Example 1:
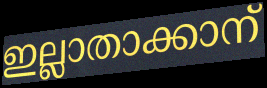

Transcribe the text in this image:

ഇല്ലാതാക്കാന്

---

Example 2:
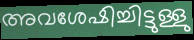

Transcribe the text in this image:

അവശേഷിച്ചിട്ടുള്ളു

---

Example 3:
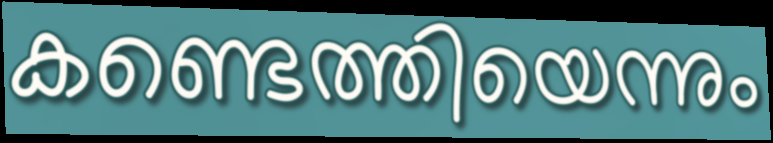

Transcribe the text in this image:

കണ്ടെത്തിയെന്നും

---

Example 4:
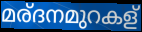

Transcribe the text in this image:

മര്ദനമുറകള്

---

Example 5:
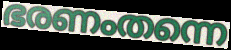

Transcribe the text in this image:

ഭരണംതന്നെ